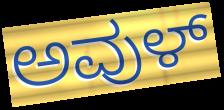
ಅವುಳ್